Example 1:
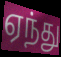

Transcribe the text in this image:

ஏந்து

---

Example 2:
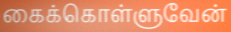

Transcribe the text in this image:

கைக்கொள்ளுவேன்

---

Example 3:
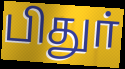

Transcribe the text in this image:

பிதுர்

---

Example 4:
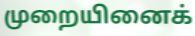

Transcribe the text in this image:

முறையினைக்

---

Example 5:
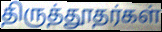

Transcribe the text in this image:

திருத்தூதர்கள்